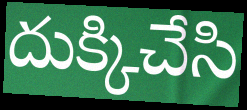
దుక్కిచేసి